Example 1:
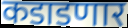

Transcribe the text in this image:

कडाडणार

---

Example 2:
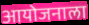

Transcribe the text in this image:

आयोजनाला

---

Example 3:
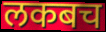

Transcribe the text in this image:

लकबच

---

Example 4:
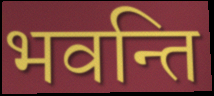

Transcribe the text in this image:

भवन्ति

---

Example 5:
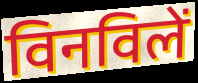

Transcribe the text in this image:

विनविलें